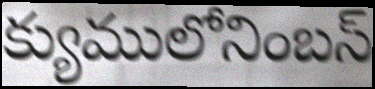
క్యుములోనింబస్